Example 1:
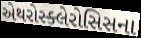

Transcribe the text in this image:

એથરોસ્ક્લેરોસિસના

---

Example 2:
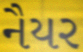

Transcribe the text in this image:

નૈયર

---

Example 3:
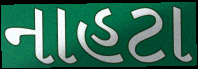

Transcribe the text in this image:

નાહટા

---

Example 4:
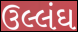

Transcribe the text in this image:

ઉલ્લંઘ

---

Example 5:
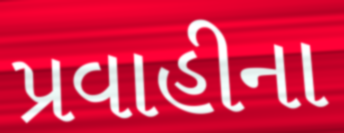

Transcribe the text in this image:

પ્રવાહીના